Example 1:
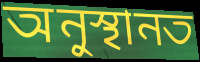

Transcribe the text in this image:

অনুস্থানত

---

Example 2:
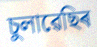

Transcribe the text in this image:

চুলাৱেছিৰ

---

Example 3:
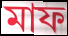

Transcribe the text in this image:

মাফ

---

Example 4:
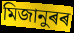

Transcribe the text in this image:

মিজানুৰৰ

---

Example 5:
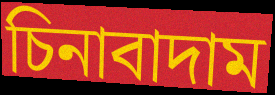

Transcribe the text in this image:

চিনাবাদাম